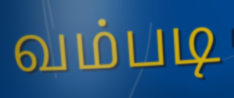
வம்படி